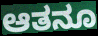
ಆತನೂ